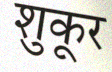
शुकूर